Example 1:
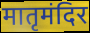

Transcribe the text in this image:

मातृमंदिर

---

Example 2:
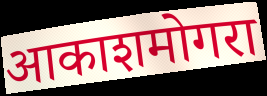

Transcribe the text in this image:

आकाशमोगरा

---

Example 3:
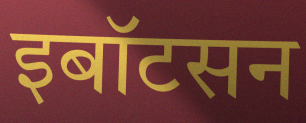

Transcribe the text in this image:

इबॉटसन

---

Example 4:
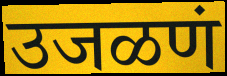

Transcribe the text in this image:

उजळणं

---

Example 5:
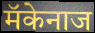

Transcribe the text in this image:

मॅकेनाज